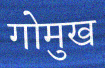
गोमुख